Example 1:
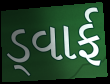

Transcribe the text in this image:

ડ્વાર્ફ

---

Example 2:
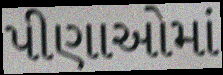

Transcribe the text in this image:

પીણાઓમાં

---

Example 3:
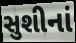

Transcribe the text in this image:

સુશીનાં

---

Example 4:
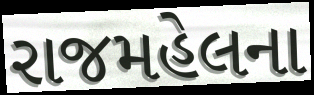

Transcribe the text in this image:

રાજમહેલના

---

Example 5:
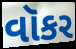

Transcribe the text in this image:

વૉકર